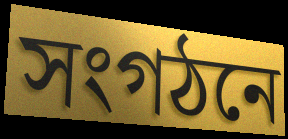
সংগঠনে